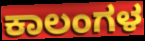
ಕಾಲಂಗಳ